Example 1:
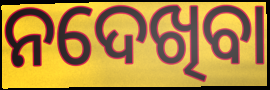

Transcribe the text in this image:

ନଦେଖିବା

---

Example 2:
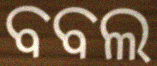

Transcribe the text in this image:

ବବଲ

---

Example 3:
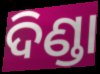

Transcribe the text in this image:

ଦିଣ୍ଡା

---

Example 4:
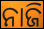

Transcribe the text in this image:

ନାଜି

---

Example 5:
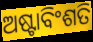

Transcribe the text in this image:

ଅଷ୍ଟାବିଂଶତି